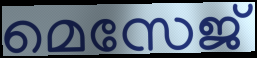
മെസേജ്